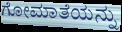
ಗೋಮಾತೆಯನ್ನು